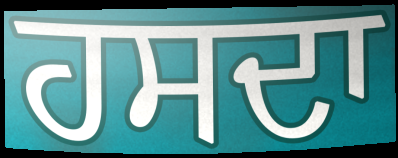
ਹਸਦਾ